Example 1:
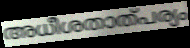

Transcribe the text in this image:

അധീശതാത്പര്യം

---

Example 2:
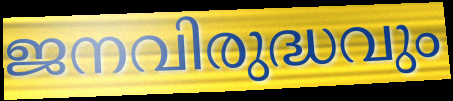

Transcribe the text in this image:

ജനവിരുദ്ധവും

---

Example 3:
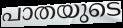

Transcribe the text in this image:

പാതയുടെ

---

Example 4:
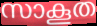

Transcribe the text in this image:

സാകൂത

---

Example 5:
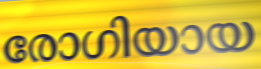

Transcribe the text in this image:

രോഗിയായ